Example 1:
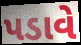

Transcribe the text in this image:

પડાવે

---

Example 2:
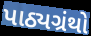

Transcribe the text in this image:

પાઠ્યગ્રંથો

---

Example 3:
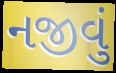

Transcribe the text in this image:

નજીવું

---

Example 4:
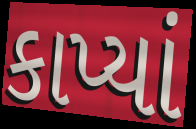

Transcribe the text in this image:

કાપ્યાં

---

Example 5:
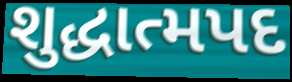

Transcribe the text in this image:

શુદ્ધાત્મપદ